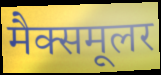
मैक्समूलर